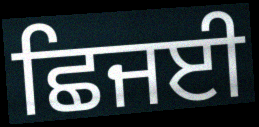
ਛਿਜਈ